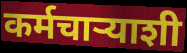
कर्मचाऱ्याशी